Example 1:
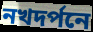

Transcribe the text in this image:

নখদর্পনে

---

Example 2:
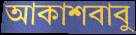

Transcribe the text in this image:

আকাশবাবু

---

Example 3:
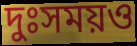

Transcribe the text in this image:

দুঃসময়ও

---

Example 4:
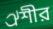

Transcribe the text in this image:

ঐশীর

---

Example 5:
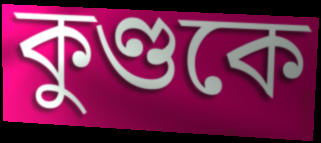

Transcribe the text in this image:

কুণ্ডকে